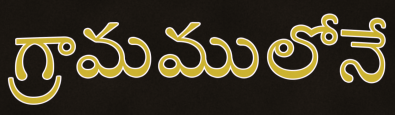
గ్రామములోనే